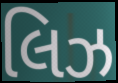
લિઝ